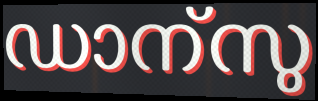
ഡാന്സു